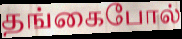
தங்கைபோல்